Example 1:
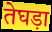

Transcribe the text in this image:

तेघड़ा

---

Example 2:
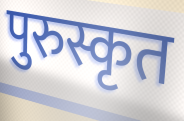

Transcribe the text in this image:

पुरुस्कृत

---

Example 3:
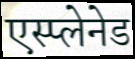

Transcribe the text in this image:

एस्प्लेनेड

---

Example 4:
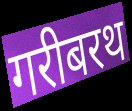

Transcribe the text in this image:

गरीबरथ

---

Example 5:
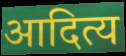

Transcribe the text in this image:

आदित्य